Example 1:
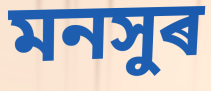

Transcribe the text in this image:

মনসুৰ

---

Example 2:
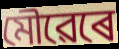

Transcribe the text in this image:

মৌৱেৰে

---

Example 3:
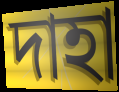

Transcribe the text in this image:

দাহা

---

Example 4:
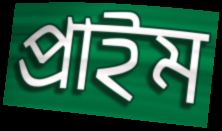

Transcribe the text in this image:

প্ৰাইম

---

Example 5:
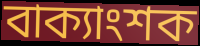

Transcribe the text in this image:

বাক্যাংশক